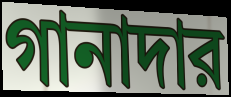
গানাদার